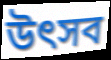
উত্‍সব